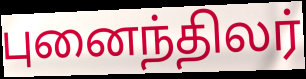
புனைந்திலர்